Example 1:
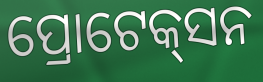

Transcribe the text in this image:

ପ୍ରୋଟେକ୍‌ସନ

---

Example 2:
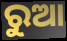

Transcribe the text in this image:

ରୁଆ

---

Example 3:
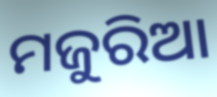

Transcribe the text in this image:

ମଜୁରିଆ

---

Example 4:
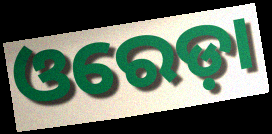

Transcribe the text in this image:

ଓରେଡ଼ା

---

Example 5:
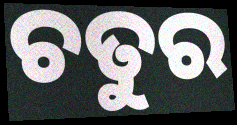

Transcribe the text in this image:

ଚତୁର